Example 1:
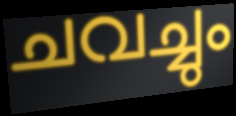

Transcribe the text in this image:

ചവച്ചും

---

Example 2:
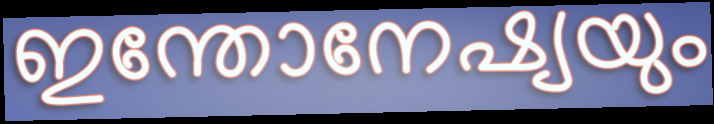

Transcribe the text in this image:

ഇന്തോനേഷ്യയും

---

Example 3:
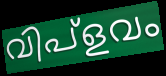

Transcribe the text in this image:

വിപ്ളവം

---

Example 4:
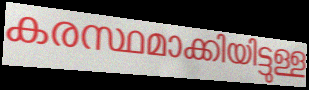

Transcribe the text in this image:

കരസ്ഥമാക്കിയിട്ടുള്ള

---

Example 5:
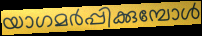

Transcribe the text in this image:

യാഗമർപ്പിക്കുമ്പോൾ